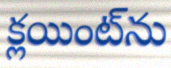
క్లయింట్‌ను